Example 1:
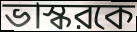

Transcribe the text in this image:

ভাস্করকে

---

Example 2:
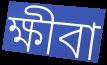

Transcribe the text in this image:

ক্ষীবা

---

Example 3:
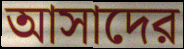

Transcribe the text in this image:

আসাদের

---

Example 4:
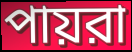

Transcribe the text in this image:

পায়রা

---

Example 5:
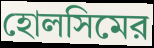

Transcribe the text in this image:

হোলসিমের